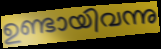
ഉണ്ടായിവന്നു